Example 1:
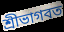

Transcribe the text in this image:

শ্রীভাগবত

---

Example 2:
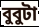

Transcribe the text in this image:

বুবুটা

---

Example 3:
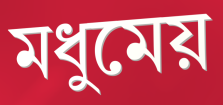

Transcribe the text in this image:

মধুমেয়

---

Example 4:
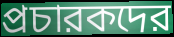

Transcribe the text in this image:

প্রচারকদের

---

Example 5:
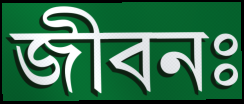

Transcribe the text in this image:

জীবনঃ